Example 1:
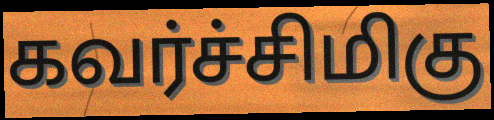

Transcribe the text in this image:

கவர்ச்சிமிகு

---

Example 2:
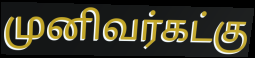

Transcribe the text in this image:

முனிவர்கட்கு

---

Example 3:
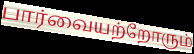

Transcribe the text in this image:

பார்வையற்றோரும்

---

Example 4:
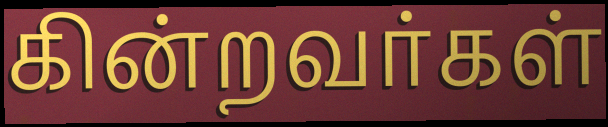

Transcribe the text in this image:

கின்றவர்கள்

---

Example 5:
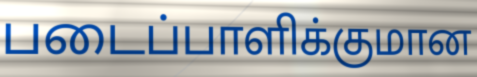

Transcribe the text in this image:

படைப்பாளிக்குமான